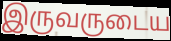
இருவருடைய